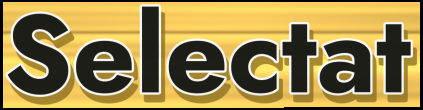
Selectat